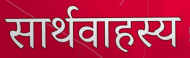
सार्थवाहस्य